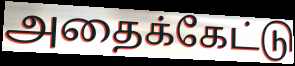
அதைக்கேட்டு